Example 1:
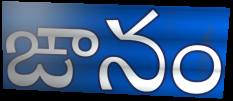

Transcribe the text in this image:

ఙానం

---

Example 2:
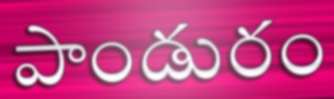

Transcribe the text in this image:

పాండురం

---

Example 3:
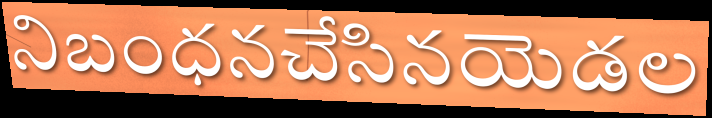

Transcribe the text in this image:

నిబంధనచేసినయెడల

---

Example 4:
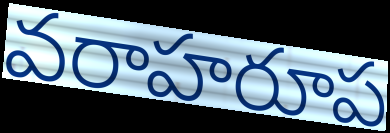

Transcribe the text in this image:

వరాహరూప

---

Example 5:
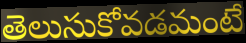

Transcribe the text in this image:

తెలుసుకోవడమంటే